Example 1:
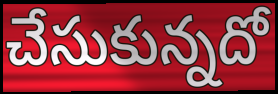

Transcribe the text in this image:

చేసుకున్నదో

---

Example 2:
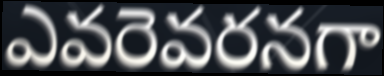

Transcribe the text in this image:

ఎవరెవరనగా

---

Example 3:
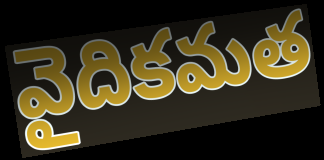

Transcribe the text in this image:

వైదికమత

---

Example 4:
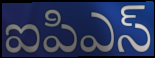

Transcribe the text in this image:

ఐపిఎస్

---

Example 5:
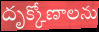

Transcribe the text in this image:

దృక్కోణాలను